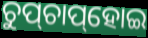
ଚୁପ୍‌ଚାପ୍‌ହୋଇ